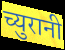
च्युरानी